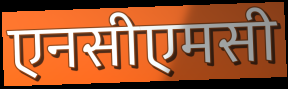
एनसीएमसी